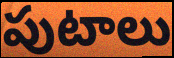
పుటాలు